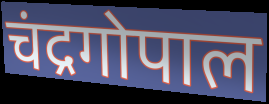
चंद्रगोपाल